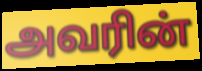
அவரின்